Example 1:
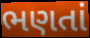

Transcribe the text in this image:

ભણતાં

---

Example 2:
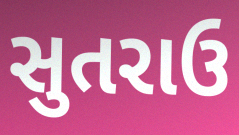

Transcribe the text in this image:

સુતરાઉ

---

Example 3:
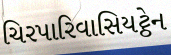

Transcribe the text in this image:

ચિરપારિવાસિયટ્ઠેન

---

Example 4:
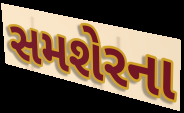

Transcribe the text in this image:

સમશેરના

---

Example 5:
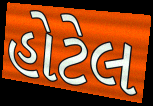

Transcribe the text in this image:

હોટેલ